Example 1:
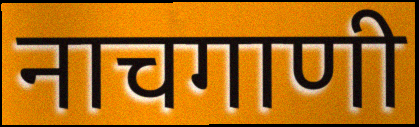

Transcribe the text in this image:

नाचगाणी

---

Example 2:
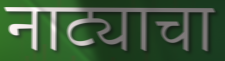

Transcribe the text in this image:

नाट्याचा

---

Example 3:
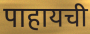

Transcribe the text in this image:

पाहायची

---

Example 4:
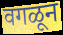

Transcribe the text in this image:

वगळून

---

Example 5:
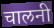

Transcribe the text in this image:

चालनी